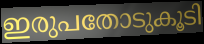
ഇരുപതോടുകൂടി